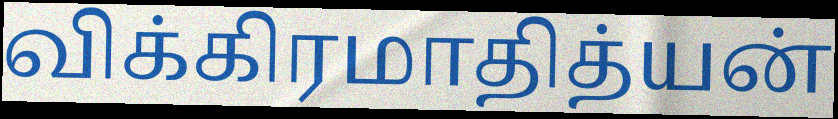
விக்கிரமாதித்யன்